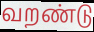
வறண்டு